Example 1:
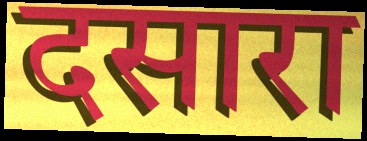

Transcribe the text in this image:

दसारा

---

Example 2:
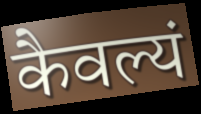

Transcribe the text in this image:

कैवल्यं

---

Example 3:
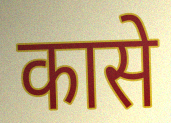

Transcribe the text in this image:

कासे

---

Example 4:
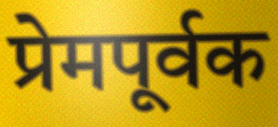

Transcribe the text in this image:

प्रेमपूर्वक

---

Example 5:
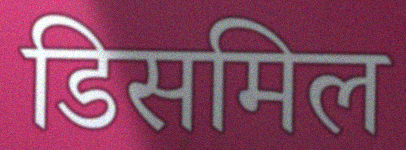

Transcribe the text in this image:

डिसमिल